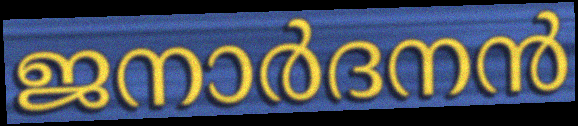
ജനാർദനൻ